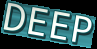
DEEP